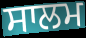
ਸਾਲਮ